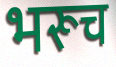
भरूच